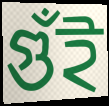
গুঁই